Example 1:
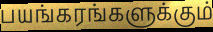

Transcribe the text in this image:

பயங்கரங்களுக்கும்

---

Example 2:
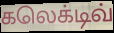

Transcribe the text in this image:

கலெக்டிவ்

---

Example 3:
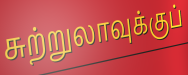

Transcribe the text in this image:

சுற்றுலாவுக்குப்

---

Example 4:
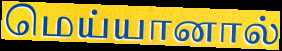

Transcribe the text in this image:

மெய்யானால்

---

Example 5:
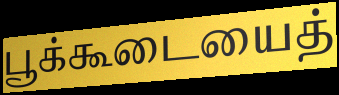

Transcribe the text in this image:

பூக்கூடையைத்